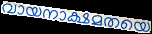
വായനാക്ഷമതയെ